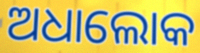
ଅଧାଲୋକ